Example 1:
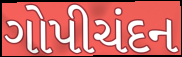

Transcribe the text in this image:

ગોપીચંદન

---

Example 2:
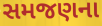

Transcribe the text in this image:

સમજણના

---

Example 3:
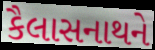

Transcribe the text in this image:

કૈલાસનાથને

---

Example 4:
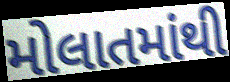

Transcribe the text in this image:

મોલાતમાંથી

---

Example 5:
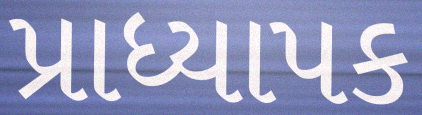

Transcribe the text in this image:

પ્રાધ્યાપક